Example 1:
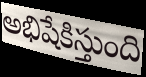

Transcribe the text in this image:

అభిషేకిస్తుంది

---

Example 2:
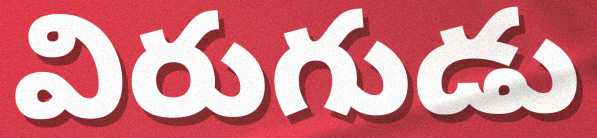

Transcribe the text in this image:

విరుగుడు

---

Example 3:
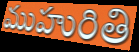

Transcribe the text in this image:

ముహురితి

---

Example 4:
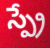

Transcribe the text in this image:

స్ప్రే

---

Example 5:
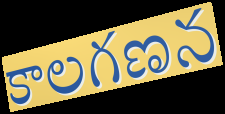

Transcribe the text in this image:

కాలగణన